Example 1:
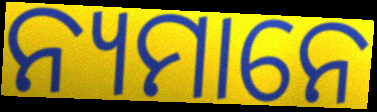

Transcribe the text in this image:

ନ୍ୟମାନେ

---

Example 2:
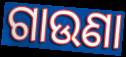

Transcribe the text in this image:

ଗାଉଣା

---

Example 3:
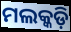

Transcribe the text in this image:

ମଲକ୍କଡ଼ି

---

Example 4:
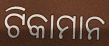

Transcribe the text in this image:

ଟିକାମାନ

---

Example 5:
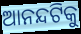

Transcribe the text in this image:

ଆନନ୍ଦଟିକୁ